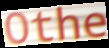
Othe